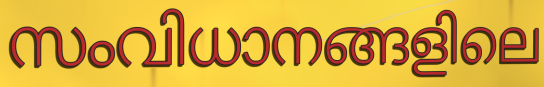
സംവിധാനങ്ങളിലെ